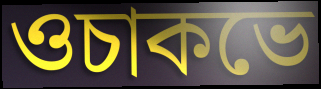
ওচাকভে